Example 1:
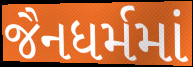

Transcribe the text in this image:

જૈનધર્મમાં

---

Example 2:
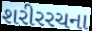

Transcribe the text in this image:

શરીરરચના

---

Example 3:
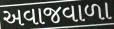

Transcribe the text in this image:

અવાજવાળા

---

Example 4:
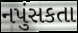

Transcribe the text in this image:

નપુંસકતા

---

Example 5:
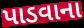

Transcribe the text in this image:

પાડવાના